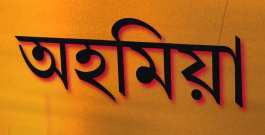
অহমিয়া